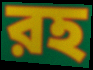
রহ